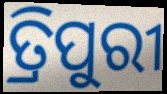
ତ୍ରିପୁରୀ